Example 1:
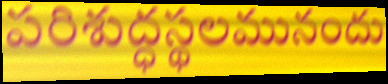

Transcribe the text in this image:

పరిశుద్ధస్థలమునందు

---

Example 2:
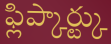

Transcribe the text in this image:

ఫ్లిప్కార్ట్కు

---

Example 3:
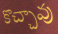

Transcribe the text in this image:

కొచ్చావు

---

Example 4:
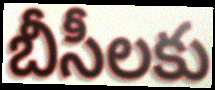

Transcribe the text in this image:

బీసీలకు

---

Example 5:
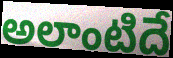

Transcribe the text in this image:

అలాంటిదే